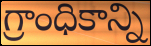
గ్రాంధికాన్ని